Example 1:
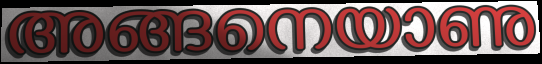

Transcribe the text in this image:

അങ്ങനെയാണു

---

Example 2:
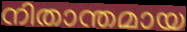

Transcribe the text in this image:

നിതാന്തമായ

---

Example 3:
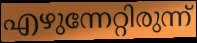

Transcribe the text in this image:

എഴുന്നേറ്റിരുന്ന്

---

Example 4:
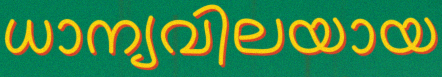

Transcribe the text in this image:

ധാന്യവിലയായ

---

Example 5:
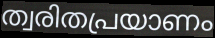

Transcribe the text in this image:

ത്വരിതപ്രയാണം